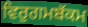
ਵਿਰੁਗਮਬੱਕਮ